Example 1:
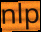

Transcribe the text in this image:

nlp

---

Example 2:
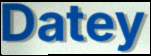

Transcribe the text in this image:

Datey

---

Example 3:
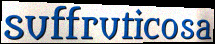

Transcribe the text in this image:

suffruticosa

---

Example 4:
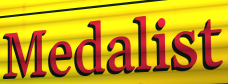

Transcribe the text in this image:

Medalist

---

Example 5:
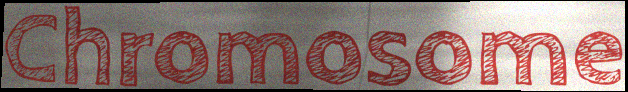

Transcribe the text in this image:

Chromosome